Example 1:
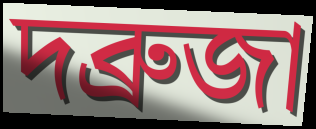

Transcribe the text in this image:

দব্রুজা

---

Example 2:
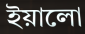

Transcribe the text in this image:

ইয়ালো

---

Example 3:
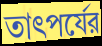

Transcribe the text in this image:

তাৎপর্যের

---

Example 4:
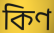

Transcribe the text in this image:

কিণ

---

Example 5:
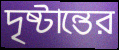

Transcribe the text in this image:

দৃষ্টান্তের